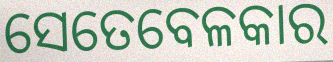
ସେତେବେଳକାର